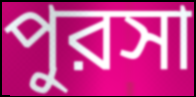
পুরসা